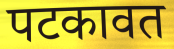
पटकावत